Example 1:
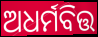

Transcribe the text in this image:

ଅଧର୍ମବିତ୍ତ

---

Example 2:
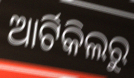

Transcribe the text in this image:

ଆର୍ଟିକିଲରୁ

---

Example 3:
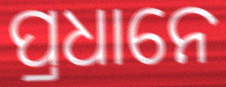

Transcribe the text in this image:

ପ୍ରଧାନେ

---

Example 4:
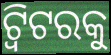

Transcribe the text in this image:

ଟ୍ୱିଟରକୁ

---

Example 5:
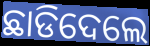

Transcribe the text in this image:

ଛାଡିଦେଲେ